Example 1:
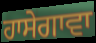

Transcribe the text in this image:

ਹਾਸੇਗਾਵਾ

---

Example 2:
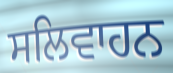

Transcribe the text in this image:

ਸਲਿਵਾਹਨ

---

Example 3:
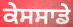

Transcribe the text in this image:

ਕੇਸਸਾਡੇ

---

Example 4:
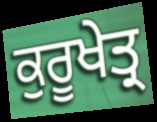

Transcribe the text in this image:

ਕੁਰੂਖੇਤ੍ਰ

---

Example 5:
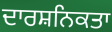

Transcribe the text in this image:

ਦਾਰਸ਼ਨਿਕਤਾ